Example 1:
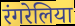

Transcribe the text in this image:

रंगरेलिया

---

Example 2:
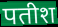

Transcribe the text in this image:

पतीश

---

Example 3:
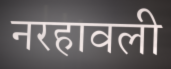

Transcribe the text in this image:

नरहावली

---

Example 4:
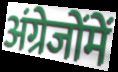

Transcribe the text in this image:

अंग्रेजोंमें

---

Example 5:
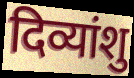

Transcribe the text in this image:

दिव्यांशु